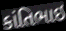
કાંતિભાઇ